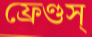
ফ্রেণ্ডস্